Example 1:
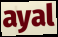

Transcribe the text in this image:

ayal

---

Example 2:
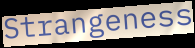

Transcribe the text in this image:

Strangeness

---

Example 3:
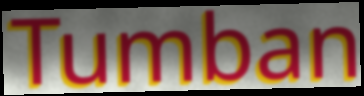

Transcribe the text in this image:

Tumban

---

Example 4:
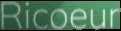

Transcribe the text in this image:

Ricoeur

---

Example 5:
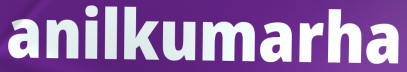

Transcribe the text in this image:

anilkumarha